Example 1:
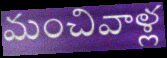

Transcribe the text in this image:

మంచివాళ్ల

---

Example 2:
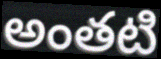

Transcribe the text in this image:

అంతటి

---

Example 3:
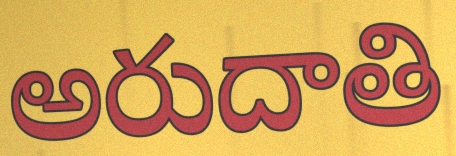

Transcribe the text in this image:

అరుదాతి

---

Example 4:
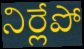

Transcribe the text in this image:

నిర్లేపో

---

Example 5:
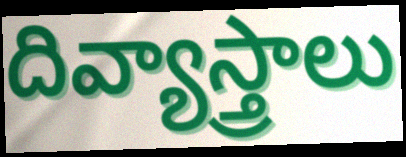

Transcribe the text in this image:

దివ్యాస్త్రాలు